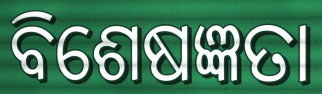
ବିଶେଷଜ୍ଞତା